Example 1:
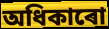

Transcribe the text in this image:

অধিকাৰো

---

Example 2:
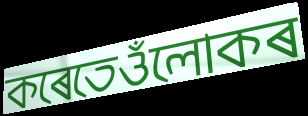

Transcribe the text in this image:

কৰেতেওঁলোকৰ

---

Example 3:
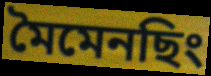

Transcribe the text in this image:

মৈমেনছিং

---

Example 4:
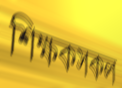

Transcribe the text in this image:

শিক্ষকসকল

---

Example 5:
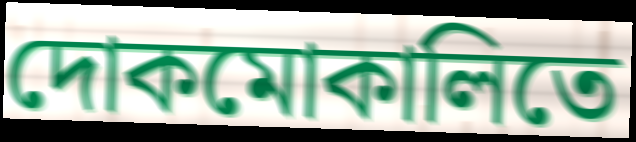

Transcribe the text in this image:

দোকমোকালিতে